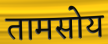
तामसोय